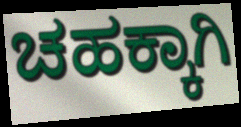
ಚಹಕ್ಕಾಗಿ